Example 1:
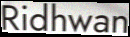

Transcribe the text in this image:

Ridhwan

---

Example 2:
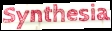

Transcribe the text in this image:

Synthesia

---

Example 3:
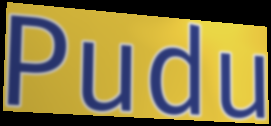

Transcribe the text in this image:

Pudu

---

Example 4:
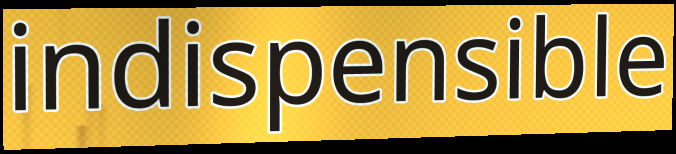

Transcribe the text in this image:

indispensible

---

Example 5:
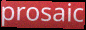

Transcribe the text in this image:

prosaic